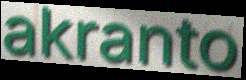
akranto